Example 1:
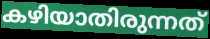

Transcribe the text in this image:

കഴിയാതിരുന്നത്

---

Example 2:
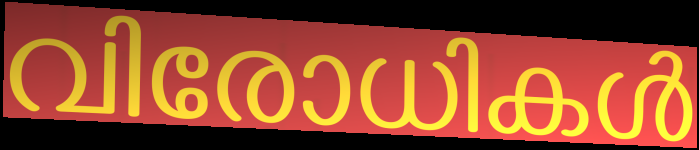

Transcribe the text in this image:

വിരോധികൾ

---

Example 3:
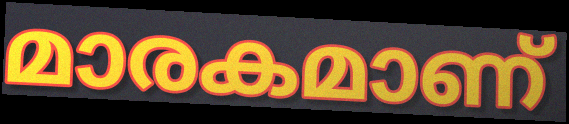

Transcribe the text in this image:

മാരകമാണ്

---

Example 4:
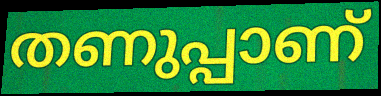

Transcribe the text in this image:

തണുപ്പാണ്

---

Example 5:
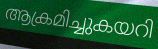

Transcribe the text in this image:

ആക്രമിച്ചുകയറി